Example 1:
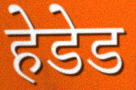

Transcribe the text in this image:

हेडेड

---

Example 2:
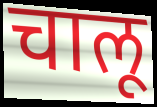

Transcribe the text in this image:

चालू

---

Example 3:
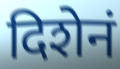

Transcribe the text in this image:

दिशेनं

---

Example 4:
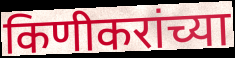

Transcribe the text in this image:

किणीकरांच्या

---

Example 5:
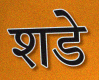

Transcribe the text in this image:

शडे